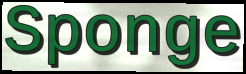
Sponge